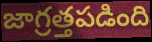
జాగ్రత్తపడింది